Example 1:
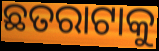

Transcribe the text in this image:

ଛତରାଟାକୁ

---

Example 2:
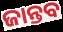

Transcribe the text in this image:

ଜାନ୍ତବ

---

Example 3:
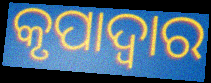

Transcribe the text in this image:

କୃପାଦ୍ଵାର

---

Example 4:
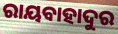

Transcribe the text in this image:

ରାୟବାହାଦୁର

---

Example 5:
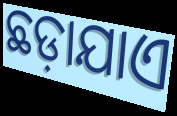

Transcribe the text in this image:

ଛଡ଼ାଯାଏ